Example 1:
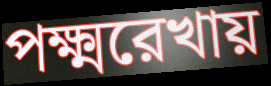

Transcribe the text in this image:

পক্ষ্মরেখায়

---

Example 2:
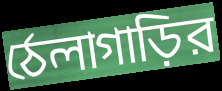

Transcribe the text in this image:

ঠেলাগাড়ির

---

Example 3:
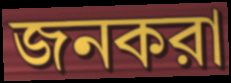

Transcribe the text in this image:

জনকরা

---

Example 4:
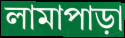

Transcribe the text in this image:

লামাপাড়া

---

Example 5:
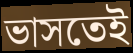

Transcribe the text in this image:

ভাসতেই